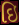
ઇિ